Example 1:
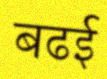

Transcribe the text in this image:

बढई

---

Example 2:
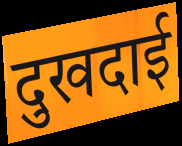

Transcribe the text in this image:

दुखदाई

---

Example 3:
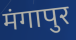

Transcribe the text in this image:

मंगापुर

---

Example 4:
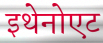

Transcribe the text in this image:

इथेनोएट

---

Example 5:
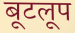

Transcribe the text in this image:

बूटलूप